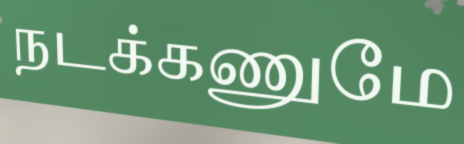
நடக்கணுமே